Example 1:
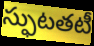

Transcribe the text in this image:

స్ఫుటతటీ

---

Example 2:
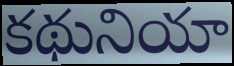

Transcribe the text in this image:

కథునియా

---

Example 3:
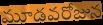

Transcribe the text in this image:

మూడవరోజున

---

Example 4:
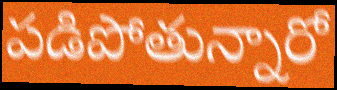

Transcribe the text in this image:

పడిపోతున్నారో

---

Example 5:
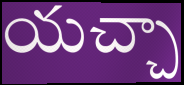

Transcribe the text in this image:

యచ్చా